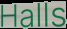
Halls